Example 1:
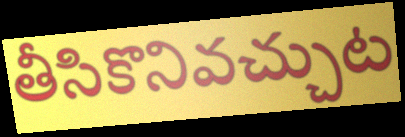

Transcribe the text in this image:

తీసికొనివచ్చుట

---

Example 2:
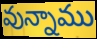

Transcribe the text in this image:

వున్నాము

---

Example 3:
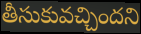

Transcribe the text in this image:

తీసుకువచ్చిందని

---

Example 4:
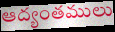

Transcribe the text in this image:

ఆద్యంతములు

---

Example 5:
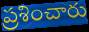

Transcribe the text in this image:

ప్రశించారు